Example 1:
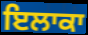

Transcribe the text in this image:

ਇਲਾਕਾ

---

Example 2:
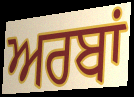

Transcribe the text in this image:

ਅਰਬਾਂ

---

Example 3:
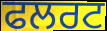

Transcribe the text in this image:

ਫਲਰਟ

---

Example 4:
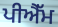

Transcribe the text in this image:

ਪੀਐੱਮ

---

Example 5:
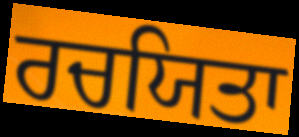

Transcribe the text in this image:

ਰਚਯਿਤਾ